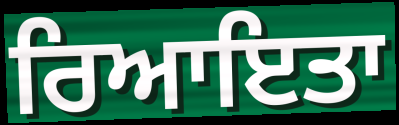
ਰਿਆਇਤਾ